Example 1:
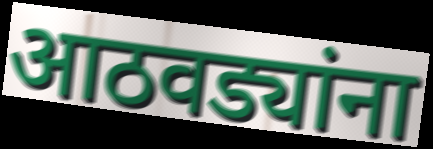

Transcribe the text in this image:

आठवड्यांना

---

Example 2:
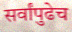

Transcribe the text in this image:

सर्वांपुढेच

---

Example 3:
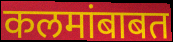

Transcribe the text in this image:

कलमांबाबत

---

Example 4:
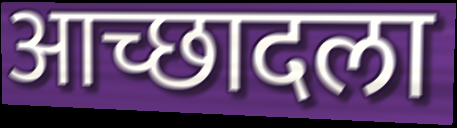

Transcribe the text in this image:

आच्छादला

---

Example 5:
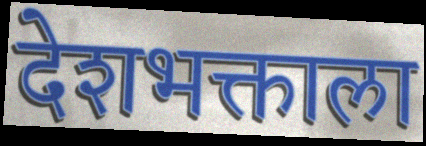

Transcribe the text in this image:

देशभक्ताला